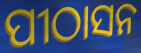
ପୀଠାସନ